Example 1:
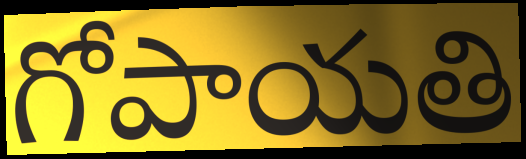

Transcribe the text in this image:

గోపాయతి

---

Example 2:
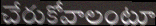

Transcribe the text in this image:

చేరుకోవాలంటూ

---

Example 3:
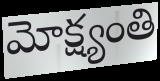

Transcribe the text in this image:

మోక్ష్యంతి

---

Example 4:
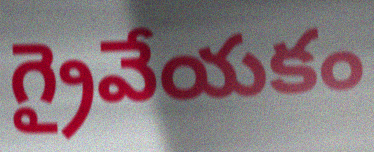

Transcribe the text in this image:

గ్రైవేయకం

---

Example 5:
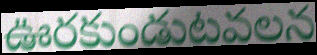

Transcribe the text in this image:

ఊరకుండుటవలన